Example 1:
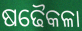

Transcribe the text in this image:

ଷଢୈକଳା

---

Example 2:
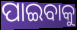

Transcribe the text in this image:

ପାଇବାକୁ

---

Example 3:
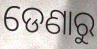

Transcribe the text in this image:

ଡେଣାରୁ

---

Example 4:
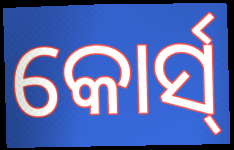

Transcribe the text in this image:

କୋର୍ସ୍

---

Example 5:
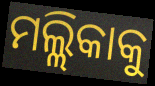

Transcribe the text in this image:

ମଲ୍ଲିକାକୁ